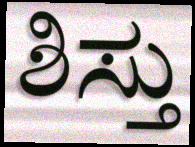
ಶಿಸ್ತು